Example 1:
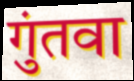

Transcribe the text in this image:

गुंतवा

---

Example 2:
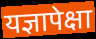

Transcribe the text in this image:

यज्ञापेक्षा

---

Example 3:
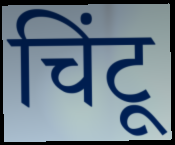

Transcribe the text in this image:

चिंटू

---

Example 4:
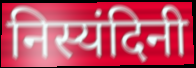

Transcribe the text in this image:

निस्यंदिनी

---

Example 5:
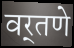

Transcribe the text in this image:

वर्तणे